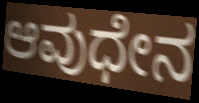
ಆವುಧೇನ